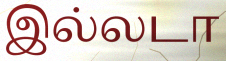
இல்லடா